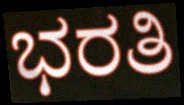
ಭರತಿ